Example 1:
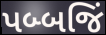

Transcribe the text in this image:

પબ્બજિં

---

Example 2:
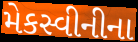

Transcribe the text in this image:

મેકસ્વીનીના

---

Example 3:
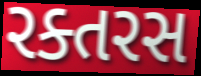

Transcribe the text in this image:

રક્તરસ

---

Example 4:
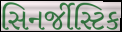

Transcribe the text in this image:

સિનર્જીસ્ટિક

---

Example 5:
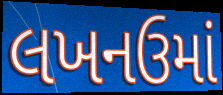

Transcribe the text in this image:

લખનઉમાં